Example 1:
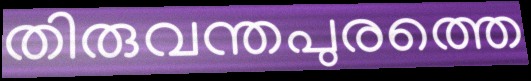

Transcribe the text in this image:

തിരുവന്തപുരത്തെ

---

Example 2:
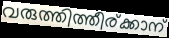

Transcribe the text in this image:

വരുത്തിത്തീര്ക്കാന്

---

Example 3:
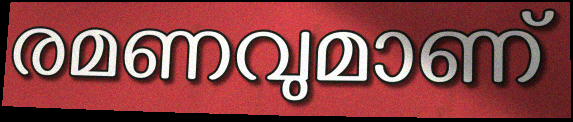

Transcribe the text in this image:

രമണവുമാണ്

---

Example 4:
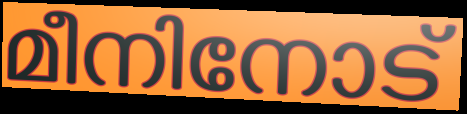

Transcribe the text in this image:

മീനിനോട്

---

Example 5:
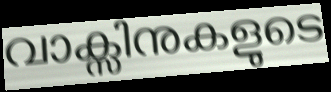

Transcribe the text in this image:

വാക്സിനുകളുടെ